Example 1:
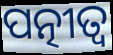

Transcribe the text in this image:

ପତ୍ନୀତ୍ୱ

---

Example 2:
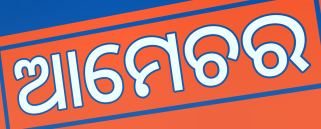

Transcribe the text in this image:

ଆମେଚର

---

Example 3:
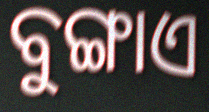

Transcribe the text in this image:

ବୁଙ୍ଗାଏ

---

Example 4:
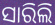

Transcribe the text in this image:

ସାରିଲି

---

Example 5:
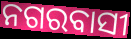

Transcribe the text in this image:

ନଗରବାସୀ